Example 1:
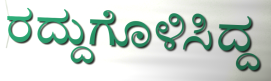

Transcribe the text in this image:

ರದ್ದುಗೊಳಿಸಿದ್ದ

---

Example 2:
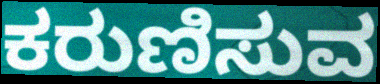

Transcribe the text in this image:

ಕರುಣಿಸುವ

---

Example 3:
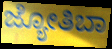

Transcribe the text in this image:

ಜ್ಯೋತಿಬಾ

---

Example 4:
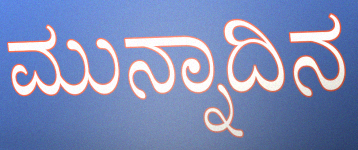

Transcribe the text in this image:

ಮುನ್ನಾದಿನ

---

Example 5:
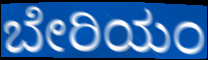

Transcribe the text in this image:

ಬೇರಿಯಂ